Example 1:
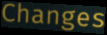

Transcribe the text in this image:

Changes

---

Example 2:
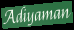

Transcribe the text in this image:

Adiyaman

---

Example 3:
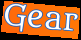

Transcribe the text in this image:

Gear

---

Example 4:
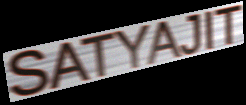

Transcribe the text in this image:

SATYAJIT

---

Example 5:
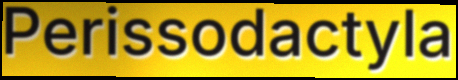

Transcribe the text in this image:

Perissodactyla